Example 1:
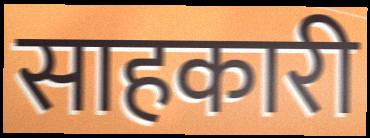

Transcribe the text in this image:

साहकारी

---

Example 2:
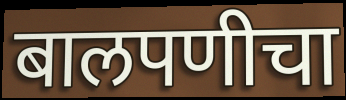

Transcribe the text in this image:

बालपणीचा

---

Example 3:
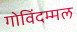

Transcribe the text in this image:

गोविंदम्मल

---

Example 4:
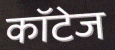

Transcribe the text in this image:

कॉटेज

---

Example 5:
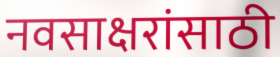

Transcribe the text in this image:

नवसाक्षरांसाठी